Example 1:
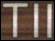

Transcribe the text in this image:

TII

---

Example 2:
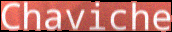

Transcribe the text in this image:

Chaviche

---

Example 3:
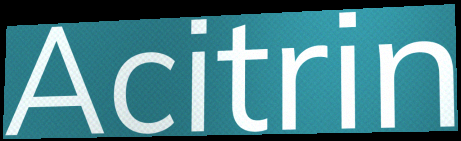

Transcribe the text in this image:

Acitrin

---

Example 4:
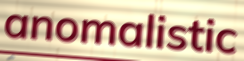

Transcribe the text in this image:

anomalistic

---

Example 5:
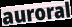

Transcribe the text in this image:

auroral